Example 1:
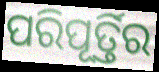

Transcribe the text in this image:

ପରିପୂର୍ତ୍ତିର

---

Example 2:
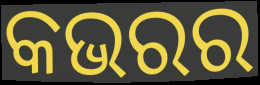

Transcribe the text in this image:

କଭରର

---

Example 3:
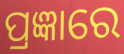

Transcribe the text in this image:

ପ୍ରଜ୍ଞାରେ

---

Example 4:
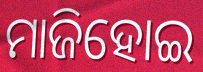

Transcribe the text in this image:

ମାଜିହୋଇ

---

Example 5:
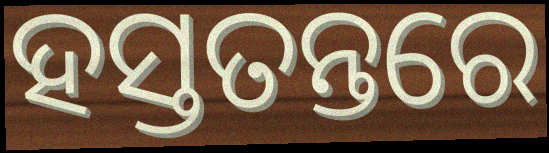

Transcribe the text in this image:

ହସ୍ତତନ୍ତରେ